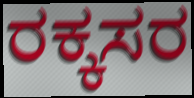
ರಕ್ಕಸರ